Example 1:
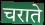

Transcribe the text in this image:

चराते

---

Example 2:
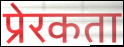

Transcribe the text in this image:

प्रेरकता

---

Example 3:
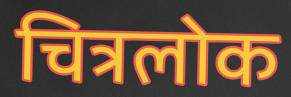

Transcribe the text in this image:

चित्रलोक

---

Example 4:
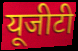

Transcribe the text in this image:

यूजीटी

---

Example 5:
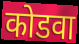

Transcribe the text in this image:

कोडवा